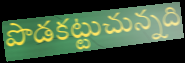
పొడకట్టుచున్నది